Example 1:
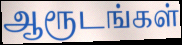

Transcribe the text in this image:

ஆரூடங்கள்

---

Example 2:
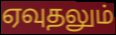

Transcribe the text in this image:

ஏவுதலும்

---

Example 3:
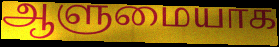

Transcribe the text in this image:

ஆளுமையாக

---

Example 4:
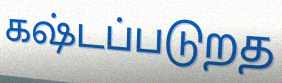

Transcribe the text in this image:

கஷ்டப்படுறத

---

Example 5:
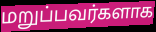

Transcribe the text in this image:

மறுப்பவர்களாக